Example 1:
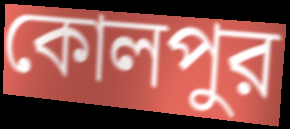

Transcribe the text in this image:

কোলপুর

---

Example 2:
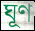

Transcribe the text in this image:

ঘূণ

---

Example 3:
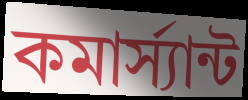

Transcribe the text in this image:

কমার্স্যান্ট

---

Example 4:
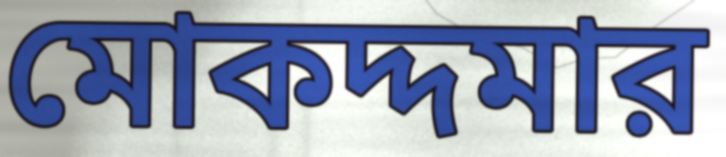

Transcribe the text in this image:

মোকদ্দমার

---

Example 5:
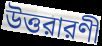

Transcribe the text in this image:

উত্তরারণী